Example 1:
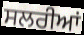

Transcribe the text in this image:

ਸਲਰੀਆਂ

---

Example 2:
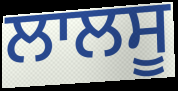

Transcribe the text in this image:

ਲਾਲਸੂ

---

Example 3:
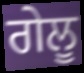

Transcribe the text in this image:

ਗੇਲੂ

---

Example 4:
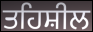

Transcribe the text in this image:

ਤਹਿਸ਼ੀਲ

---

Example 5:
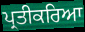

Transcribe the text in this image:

ਪ੍ਰਤੀਕਰਿਆ